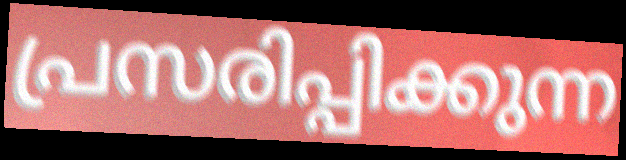
പ്രസരിപ്പിക്കുന്ന